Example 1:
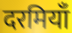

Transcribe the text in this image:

दरमियाँ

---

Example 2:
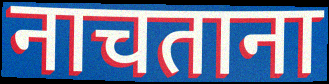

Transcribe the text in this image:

नाचताना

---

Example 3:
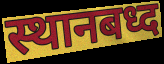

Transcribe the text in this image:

स्थानबध्द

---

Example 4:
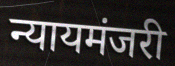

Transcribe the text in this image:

न्यायमंजरी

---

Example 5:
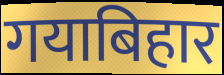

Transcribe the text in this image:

गयाबिहार